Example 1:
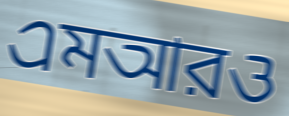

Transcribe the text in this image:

এমআরও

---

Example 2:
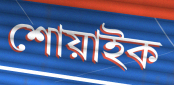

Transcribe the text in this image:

শোয়াইক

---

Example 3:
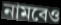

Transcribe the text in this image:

নামবেও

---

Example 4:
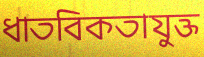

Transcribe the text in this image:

ধাতবিকতাযুক্ত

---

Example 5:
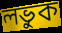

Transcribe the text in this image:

লভুক